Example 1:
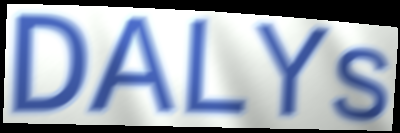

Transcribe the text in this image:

DALYs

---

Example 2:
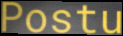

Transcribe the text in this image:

Postu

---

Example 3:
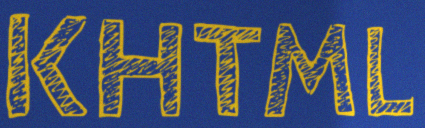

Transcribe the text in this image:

KHTML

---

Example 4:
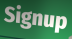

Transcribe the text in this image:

Signup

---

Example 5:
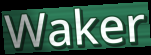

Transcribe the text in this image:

Waker